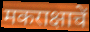
मकराक्षाचें